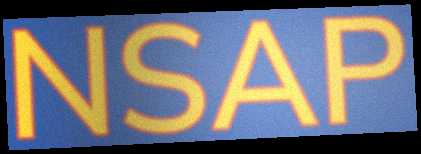
NSAP